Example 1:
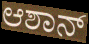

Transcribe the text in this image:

ಆಶಾನ್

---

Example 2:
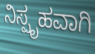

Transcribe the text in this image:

ನಿಸ್ಪೃಹವಾಗಿ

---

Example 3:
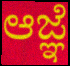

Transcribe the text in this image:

ಆಜ್ಞೆ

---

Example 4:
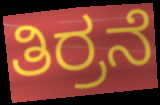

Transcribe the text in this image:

ತಿರ್ರನೆ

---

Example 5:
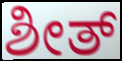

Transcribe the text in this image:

ಶೀತ್